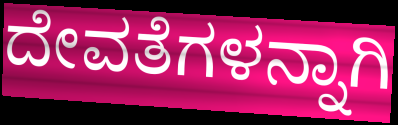
ದೇವತೆಗಳನ್ನಾಗಿ